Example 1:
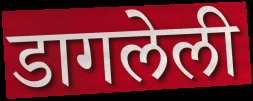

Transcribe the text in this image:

डागलेली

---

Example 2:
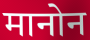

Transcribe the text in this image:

मानोन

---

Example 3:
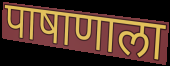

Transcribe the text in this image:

पाषाणाला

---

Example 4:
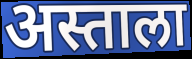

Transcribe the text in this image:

अस्ताला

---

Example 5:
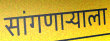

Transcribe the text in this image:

सांगणार्‍याला